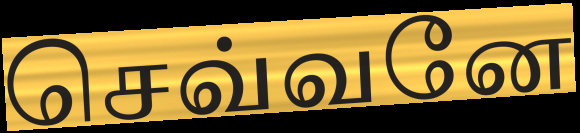
செவ்வனே